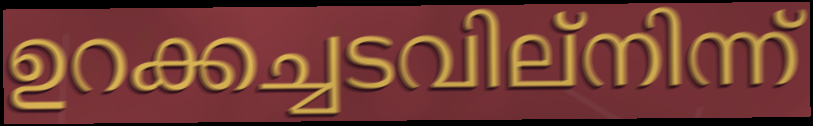
ഉറക്കച്ചടവില്നിന്ന്